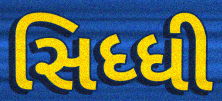
સિધ્ધી